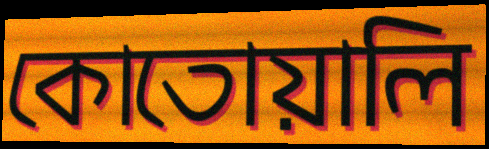
কোতোয়ালি